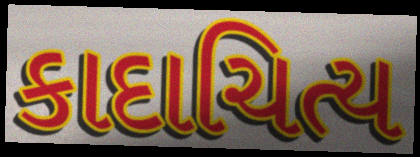
કાદાચિત્ય